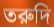
তরুদি